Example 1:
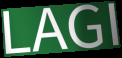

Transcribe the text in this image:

LAGI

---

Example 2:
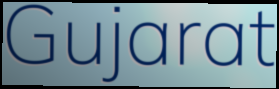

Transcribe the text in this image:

Gujarat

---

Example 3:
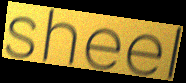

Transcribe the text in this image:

sheel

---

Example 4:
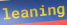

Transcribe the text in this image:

leaning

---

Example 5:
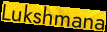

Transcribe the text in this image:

Lukshmana